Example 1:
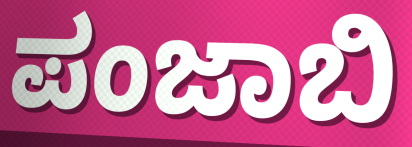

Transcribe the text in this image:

ಪಂಜಾಬಿ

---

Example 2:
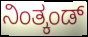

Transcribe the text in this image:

ನಿಂತ್ಕಂಡ್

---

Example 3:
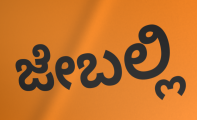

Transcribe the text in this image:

ಜೇಬಲ್ಲಿ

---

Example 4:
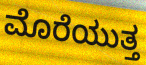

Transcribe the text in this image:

ಮೊರೆಯುತ್ತ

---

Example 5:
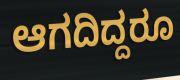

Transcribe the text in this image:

ಆಗದಿದ್ದರೂ